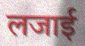
लजाई